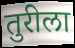
तुरीला